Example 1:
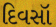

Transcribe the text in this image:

દિવસૉ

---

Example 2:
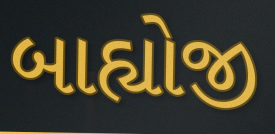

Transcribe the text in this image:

બાહ્યોજી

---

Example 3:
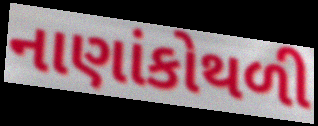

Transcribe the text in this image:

નાણાંકોથળી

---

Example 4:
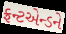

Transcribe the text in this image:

ફ્રન્ટએન્ડને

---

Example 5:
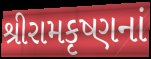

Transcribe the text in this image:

શ્રીરામકૃષ્ણનાં